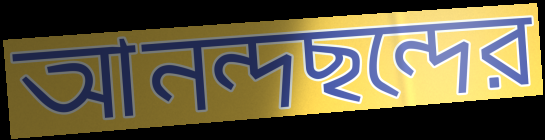
আনন্দছন্দের